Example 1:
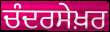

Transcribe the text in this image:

ਚੰਦਰਸੇਖ਼ਰ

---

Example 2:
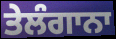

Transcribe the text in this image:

ਤੇਲੰਗਾਨਾ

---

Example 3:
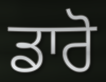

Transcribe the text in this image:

ਡਾਰੋ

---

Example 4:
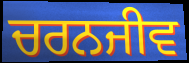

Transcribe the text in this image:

ਚਰਨਜੀਵ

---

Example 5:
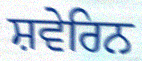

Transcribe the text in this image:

ਸ਼ਵੇਰਿਨ